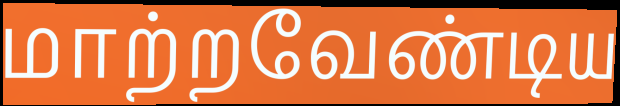
மாற்றவேண்டிய